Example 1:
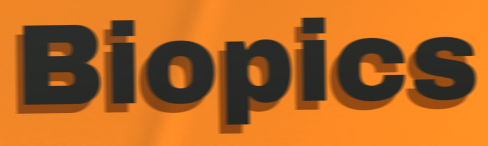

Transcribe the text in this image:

Biopics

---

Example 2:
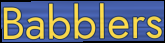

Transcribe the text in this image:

Babblers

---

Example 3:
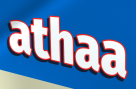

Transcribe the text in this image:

athaa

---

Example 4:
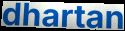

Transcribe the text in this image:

dhartan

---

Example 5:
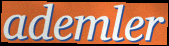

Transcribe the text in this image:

ademler